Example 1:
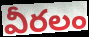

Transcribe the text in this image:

వీరలం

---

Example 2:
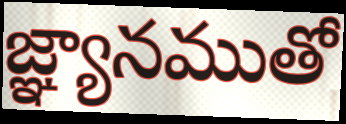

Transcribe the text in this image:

జ్ఞ్యానముతో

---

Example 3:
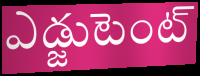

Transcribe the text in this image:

ఎడ్జుటెంట్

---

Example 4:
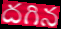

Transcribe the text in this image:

దగిన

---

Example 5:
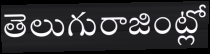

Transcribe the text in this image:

తెలుగురాజింట్లో